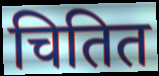
चितित